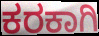
ಕರಕಾಗಿ